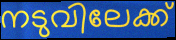
നടുവിലേക്ക്